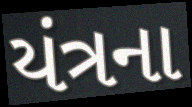
યંત્રના